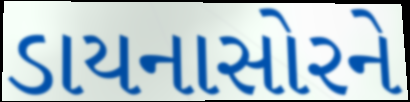
ડાયનાસોરને